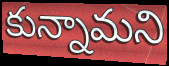
కున్నామని